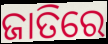
ଜାତିରେ